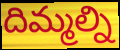
దిమ్మల్ని